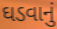
ઘડવાનું